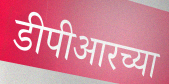
डीपीआरच्या